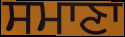
ਸਮਾਣਾ